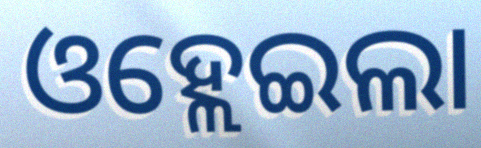
ଓହ୍ଲେଇଲା